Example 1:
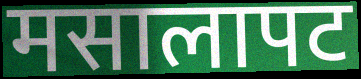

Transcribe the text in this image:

मसालापट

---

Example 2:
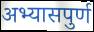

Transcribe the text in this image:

अभ्यासपुर्ण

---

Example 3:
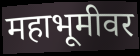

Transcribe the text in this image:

महाभूमीवर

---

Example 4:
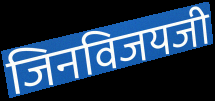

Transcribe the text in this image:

जिनविजयजी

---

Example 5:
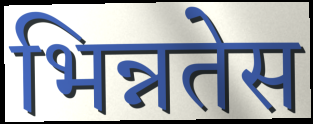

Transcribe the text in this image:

भिन्नतेस